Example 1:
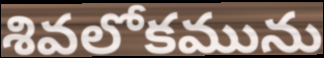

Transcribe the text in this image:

శివలోకమును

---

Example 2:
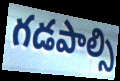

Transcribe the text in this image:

గడపాల్సి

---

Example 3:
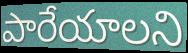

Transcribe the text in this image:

పారేయాలని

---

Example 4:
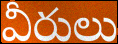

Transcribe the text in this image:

వీరులు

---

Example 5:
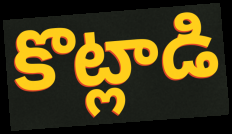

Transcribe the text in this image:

కొట్లాడి